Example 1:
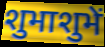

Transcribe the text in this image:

शुभाशुभें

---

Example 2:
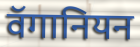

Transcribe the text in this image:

वॅगानियन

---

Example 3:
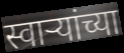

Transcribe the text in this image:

स्वाऱ्यांच्या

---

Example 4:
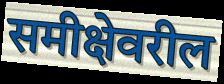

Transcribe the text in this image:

समीक्षेवरील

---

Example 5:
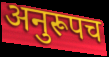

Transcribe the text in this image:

अनुरूपच